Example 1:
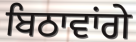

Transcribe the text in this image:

ਬਿਠਾਵਾਂਗੇ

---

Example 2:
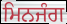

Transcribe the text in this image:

ਮਿਨਜੰਗ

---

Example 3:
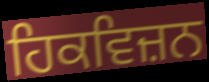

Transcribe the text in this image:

ਹਿਕਵਿਜ਼ਨ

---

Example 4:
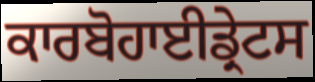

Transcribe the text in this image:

ਕਾਰਬੋਹਾਈਡ੍ਰੇਟਸ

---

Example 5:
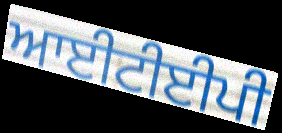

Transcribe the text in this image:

ਆਈਟੀਈਪੀ